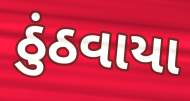
ઠુંઠવાયા